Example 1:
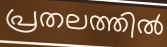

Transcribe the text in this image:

പ്രതലത്തിൽ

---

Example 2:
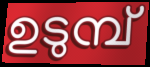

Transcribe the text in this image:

ഉടുമ്പ്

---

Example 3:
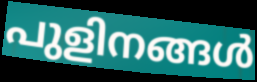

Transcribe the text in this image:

പുളിനങ്ങൾ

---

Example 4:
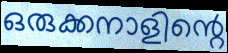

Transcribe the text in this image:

ഒരുക്കനാളിന്റെ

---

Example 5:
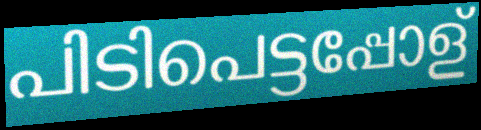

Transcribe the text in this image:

പിടിപെട്ടപ്പോള്